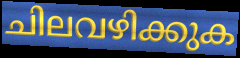
ചിലവഴിക്കുക